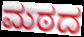
ಮಠದ